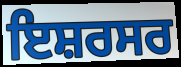
ਇਸ਼ਰਸਰ